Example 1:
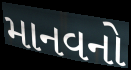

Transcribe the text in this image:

માનવનો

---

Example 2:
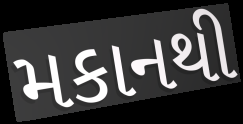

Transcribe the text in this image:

મકાનથી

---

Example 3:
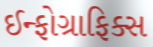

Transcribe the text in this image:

ઈન્ફોગ્રાફિક્સ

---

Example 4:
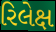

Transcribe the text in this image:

રિલેક્ષ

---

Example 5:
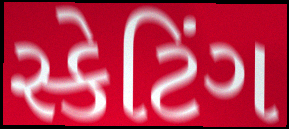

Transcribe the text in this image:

સ્કેટિંગ